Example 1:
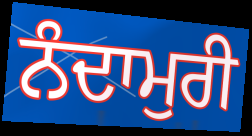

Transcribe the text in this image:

ਨੰਦਾਮੁਰੀ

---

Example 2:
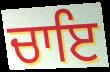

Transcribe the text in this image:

ਚਾਇ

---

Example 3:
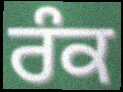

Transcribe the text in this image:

ਰੰਕ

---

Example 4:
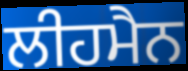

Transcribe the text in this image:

ਲੀਹਮੈਨ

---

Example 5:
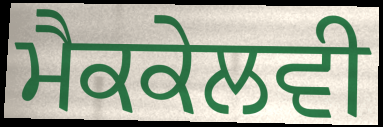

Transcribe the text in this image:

ਮੈਕਕੇਲਵੀ